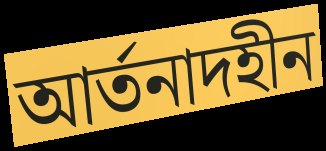
আর্তনাদহীন